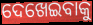
ଦେଖେଇବାକୁ